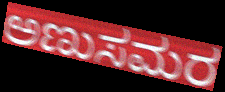
ಅಣುಸಮರ